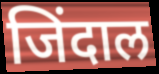
जिंदाल